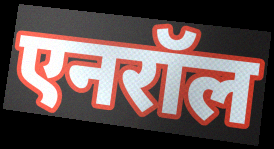
एनरॉल